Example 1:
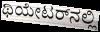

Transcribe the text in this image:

ಥಿಯೇಟರ್‌ನಲ್ಲಿ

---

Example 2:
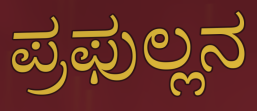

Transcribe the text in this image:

ಪ್ರಫುಲ್ಲನ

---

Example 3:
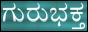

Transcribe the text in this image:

ಗುರುಭಕ್ತ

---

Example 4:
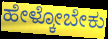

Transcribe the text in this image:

ಹೇಳ್ಕೋಬೇಕು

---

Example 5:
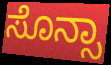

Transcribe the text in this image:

ಸೊನ್ಸಾ